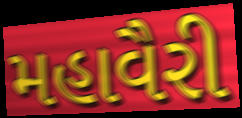
મહાવૈરી